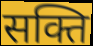
सक्ति